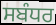
ਸਬੰਧਰ